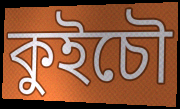
কুইচৌ